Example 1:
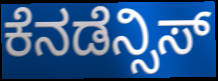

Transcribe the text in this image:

ಕೆನಡೆನ್ಸಿಸ್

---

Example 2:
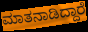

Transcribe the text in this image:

ಮಾತನಾಡಿದ್ದಾರೆ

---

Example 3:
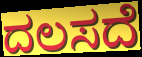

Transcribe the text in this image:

ದಲಸದೆ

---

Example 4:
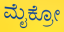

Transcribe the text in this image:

ಮೈಕ್ರೋ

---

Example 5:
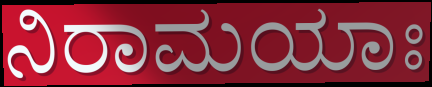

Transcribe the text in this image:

ನಿರಾಮಯಾಃ